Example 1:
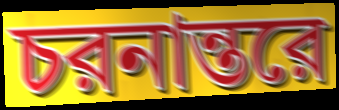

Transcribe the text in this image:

চরনান্তরে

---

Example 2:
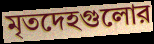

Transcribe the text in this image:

মৃতদেহগুলোর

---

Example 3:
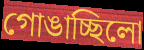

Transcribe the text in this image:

গোঙাচ্ছিলো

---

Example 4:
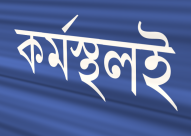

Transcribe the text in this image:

কর্মস্থলই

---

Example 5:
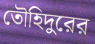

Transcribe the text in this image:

তৌহিদুরের